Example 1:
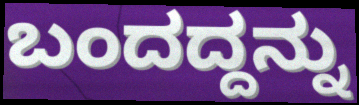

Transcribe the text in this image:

ಬಂದದ್ದನ್ನು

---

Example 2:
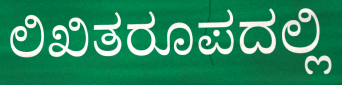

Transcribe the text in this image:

ಲಿಖಿತರೂಪದಲ್ಲಿ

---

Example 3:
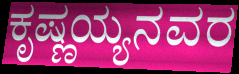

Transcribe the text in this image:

ಕೃಷ್ಣಯ್ಯನವರ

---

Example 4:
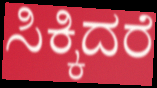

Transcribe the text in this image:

ಸಿಕ್ಕಿದರೆ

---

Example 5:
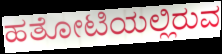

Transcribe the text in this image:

ಹತೋಟಿಯಲ್ಲಿರುವ